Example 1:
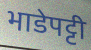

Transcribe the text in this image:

भाडेपट्टी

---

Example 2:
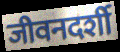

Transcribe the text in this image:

जीवनदर्शी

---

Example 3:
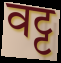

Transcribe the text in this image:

वट्ट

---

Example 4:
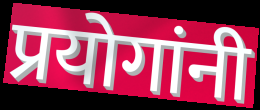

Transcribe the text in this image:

प्रयोगांनी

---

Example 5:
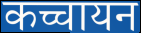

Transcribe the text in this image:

कच्चायन